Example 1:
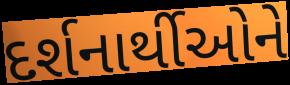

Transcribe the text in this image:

દર્શનાર્થીઓને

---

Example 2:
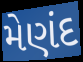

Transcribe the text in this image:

મેણંદ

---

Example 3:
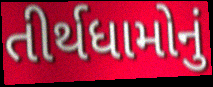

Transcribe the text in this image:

તીર્થધામોનું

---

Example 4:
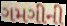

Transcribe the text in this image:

ગમગીની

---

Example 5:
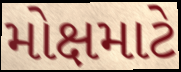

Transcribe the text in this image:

મોક્ષમાટે